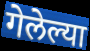
गेलेल्या